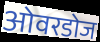
ओवरडोज